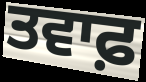
ਤਵਾਫ਼